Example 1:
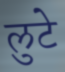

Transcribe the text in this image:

लुटे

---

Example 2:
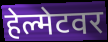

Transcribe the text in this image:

हेल्मेटवर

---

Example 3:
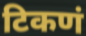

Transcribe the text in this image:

टिकणं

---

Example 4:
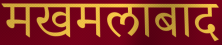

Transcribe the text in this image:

मखमलाबाद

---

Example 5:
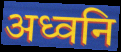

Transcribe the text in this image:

अध्वनि